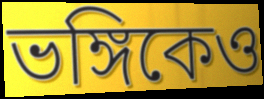
ভঙ্গিকেও